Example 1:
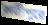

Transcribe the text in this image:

কাজীপুরে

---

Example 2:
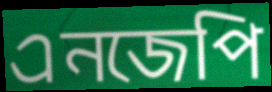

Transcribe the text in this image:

এনজেপি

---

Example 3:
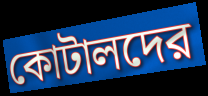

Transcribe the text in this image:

কোটালদের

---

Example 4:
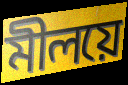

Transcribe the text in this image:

মীলয়ে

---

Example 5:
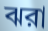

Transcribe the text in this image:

ঝরা